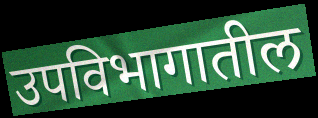
उपविभागातील